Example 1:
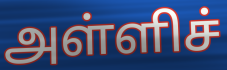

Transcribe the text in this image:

அள்ளிச்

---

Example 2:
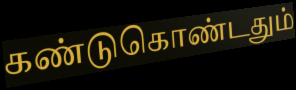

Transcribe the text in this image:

கண்டுகொண்டதும்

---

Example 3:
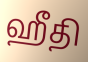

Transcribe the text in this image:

ஹீதி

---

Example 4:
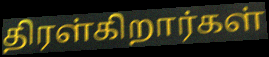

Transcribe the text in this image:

திரள்கிறார்கள்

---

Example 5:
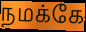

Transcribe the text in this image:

நமக்கே